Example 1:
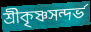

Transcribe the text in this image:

শ্রীকৃষ্ণসন্দর্ভ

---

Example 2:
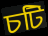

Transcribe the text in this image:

চটি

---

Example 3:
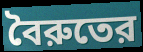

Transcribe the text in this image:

বৈরুতের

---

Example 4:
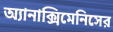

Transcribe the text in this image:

অ্যানাক্সিমেনিসের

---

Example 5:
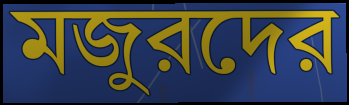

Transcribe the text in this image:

মজুরদের